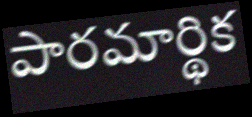
పారమార్థిక